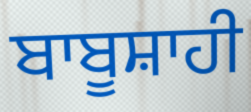
ਬਾਬੂਸ਼ਾਹੀ